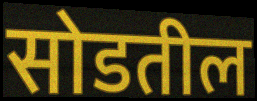
सोडतील